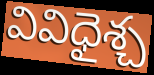
వివిధైశ్చ